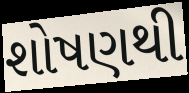
શોષણથી